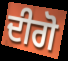
ਦੀਗੋ